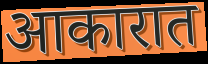
आकारात